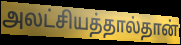
அலட்சியத்தால்தான்